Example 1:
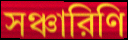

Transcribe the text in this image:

সঞ্চারিণি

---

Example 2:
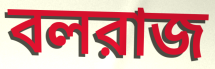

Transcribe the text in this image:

বলরাজ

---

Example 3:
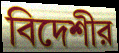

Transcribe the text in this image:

বিদেশীর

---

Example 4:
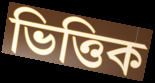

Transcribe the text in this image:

ভিত্তিক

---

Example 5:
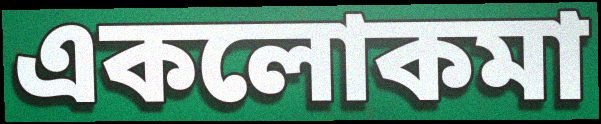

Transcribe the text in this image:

একলোকমা